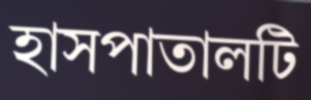
হাসপাতালটি